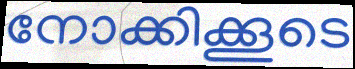
നോക്കിക്കൂടെ